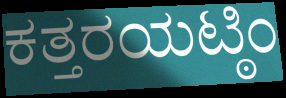
ಕತ್ತರಯಟ್ಠಿಂ